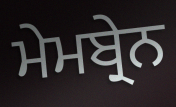
ਮੇਮਬ੍ਰੇਨ